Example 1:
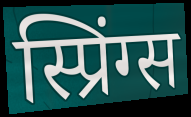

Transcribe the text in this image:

स्प्रिंग्स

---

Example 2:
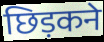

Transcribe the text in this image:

छिड़कने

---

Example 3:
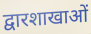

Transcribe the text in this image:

द्वारशाखाओं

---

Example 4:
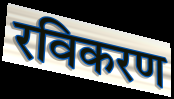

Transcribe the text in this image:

रविकरण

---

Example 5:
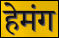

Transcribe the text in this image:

हेमंग